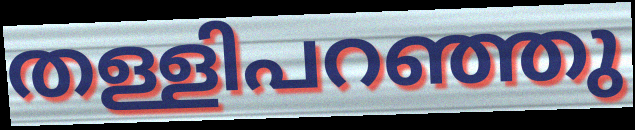
തള്ളിപറഞ്ഞു